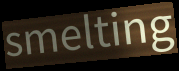
smelting